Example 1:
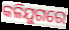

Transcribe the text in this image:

କଳିଯୁଗରେ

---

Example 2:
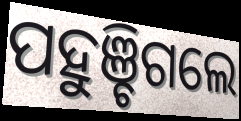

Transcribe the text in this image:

ପହୁଞ୍ଚିଗଲେ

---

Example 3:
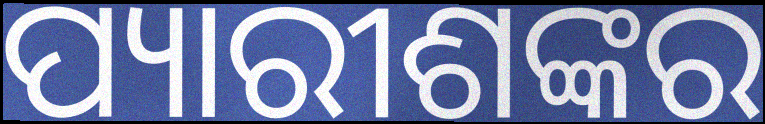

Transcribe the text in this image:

ପ୍ୟାରୀଶଙ୍କର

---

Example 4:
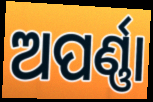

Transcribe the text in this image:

ଅପର୍ଣ୍ଣା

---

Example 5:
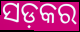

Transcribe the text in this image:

ସଡ଼କର